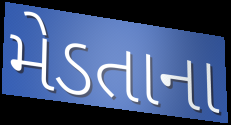
મેડતાના